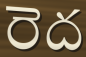
రెద